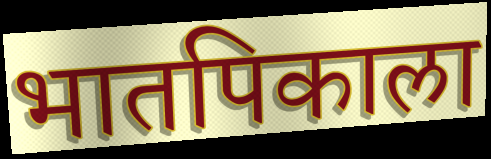
भातपिकाला